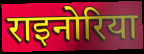
राइनोरिया